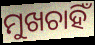
ମୁଖଚାହିଁ